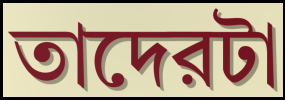
তাদেরটা